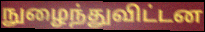
நுழைந்துவிட்டன